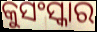
କୁସଂସ୍କାର